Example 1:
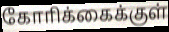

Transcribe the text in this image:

கோரிக்கைக்குள்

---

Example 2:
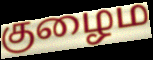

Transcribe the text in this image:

குழைம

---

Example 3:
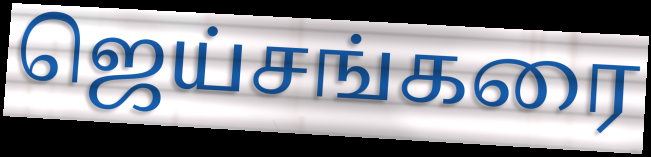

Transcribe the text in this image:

ஜெய்சங்கரை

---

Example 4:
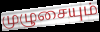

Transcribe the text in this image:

முழுசையும்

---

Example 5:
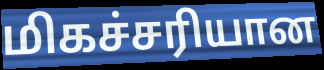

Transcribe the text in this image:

மிகச்சரியான